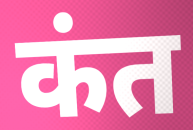
कंत